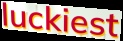
luckiest